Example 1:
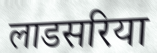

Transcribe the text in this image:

लाडसरिया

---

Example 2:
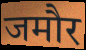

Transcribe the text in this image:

जमौर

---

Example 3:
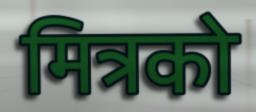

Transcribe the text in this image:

मित्रको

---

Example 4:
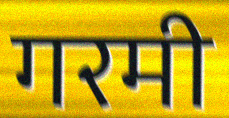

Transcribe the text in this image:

गरमी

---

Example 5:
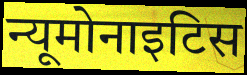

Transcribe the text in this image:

न्यूमोनाइटिस